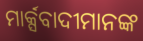
ମାର୍କ୍ସବାଦୀମାନଙ୍କ